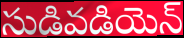
సుడివడియెన్